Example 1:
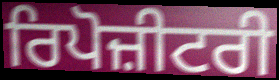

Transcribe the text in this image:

ਰਿਪੋਜ਼ੀਟਰੀ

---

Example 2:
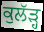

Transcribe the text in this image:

ਕੁਲੱੜ੍ਹ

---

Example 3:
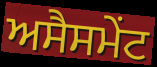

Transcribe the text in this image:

ਅਸੈਸਮੇਂਟ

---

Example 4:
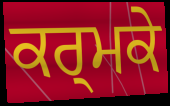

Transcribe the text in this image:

ਕਰ੍ਮਕੇ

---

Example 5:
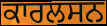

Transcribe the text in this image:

ਕਾਰਲਸਨ